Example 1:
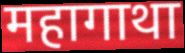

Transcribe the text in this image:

महागाथा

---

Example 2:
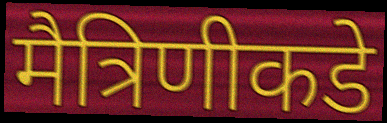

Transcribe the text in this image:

मैत्रिणीकडे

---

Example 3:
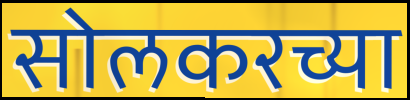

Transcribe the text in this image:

सोलकरच्या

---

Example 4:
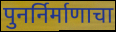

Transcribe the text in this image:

पुनर्निर्माणाचा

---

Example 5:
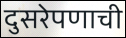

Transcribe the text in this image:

दुसरेपणाची